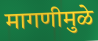
मागणीमुळे